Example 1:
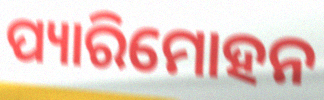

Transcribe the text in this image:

ପ୍ୟାରିମୋହନ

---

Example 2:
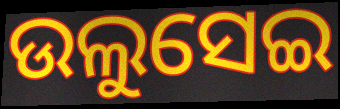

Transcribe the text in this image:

ଉଲୁସେଇ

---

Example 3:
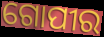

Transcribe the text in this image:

ଗୋପୀର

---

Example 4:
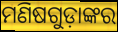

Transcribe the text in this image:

ମଣିଷଗୁଡ଼ାଙ୍କର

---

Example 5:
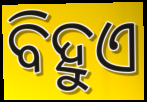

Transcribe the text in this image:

ବିହୁଏ